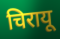
चिरायू